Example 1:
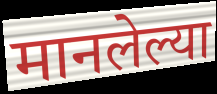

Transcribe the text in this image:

मानलेल्या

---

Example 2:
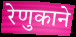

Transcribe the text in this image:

रेणुकाने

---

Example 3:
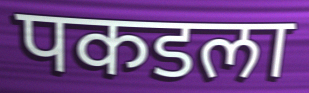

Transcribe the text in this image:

पकडला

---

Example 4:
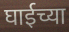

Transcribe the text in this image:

घाईच्या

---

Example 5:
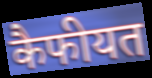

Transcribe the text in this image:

कैफीयत